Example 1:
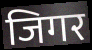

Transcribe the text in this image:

जिगर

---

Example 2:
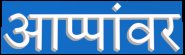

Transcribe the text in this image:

आप्पांवर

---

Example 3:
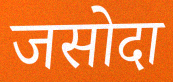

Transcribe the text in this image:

जसोदा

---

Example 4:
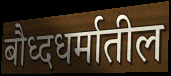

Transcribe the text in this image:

बौध्दधर्मातील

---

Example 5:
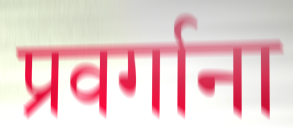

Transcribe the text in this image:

प्रवर्गाना